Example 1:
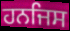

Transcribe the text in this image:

ਹਨਜਿਸ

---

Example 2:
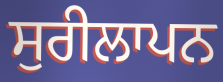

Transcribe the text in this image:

ਸੁਰੀਲਾਪਨ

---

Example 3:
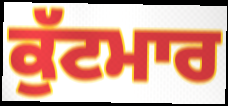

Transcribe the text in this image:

ਕੁੱਟਮਾਰ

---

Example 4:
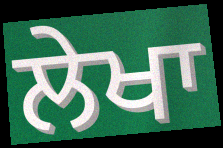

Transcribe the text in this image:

ਲੇਖਾ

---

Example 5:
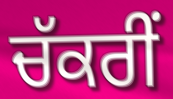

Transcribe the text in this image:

ਚੱਕਰੀਂ